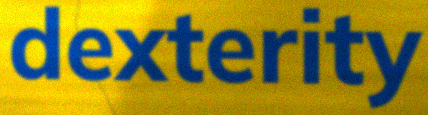
dexterity